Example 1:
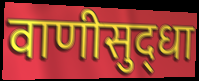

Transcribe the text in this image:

वाणीसुद्धा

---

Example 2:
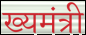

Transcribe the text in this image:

ख्यमंत्री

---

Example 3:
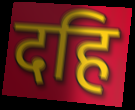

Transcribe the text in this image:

दहि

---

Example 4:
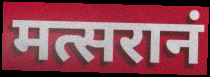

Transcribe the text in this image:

मत्सरानं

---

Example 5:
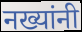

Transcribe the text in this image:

नख्यांनी